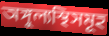
অঙ্গুল্যস্থিসমূহ